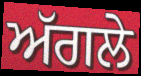
ਅੱਗਲੇ